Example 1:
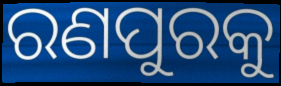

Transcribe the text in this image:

ରଣପୁରକୁ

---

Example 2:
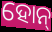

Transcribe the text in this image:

ହୋନ୍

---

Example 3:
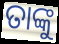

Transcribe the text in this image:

ତାଙ୍କୁ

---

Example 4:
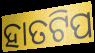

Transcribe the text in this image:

ହାତଟିପ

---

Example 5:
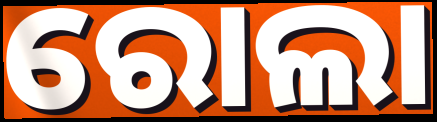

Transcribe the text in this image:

ରୋଲା